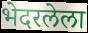
भेदरलेला